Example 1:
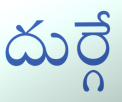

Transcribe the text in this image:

దుర్గే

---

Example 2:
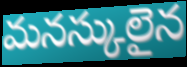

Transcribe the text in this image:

మనస్కులైన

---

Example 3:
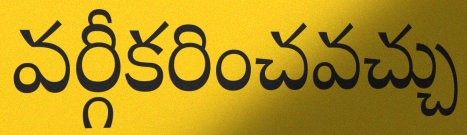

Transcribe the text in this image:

వర్గీకరించవచ్చు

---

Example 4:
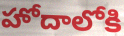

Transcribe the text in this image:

హోదాలోకి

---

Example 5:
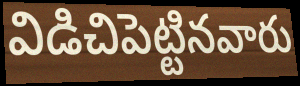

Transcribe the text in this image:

విడిచిపెట్టినవారు